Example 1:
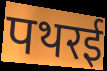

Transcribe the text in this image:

पथरई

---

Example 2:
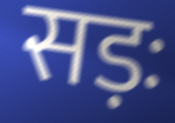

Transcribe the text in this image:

सड़ः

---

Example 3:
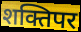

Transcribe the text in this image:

शक्तिपर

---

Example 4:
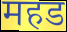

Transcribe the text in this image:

महड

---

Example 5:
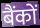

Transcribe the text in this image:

बैंकों